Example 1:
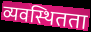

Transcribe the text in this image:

व्यवस्थितता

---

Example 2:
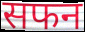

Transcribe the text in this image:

सफन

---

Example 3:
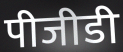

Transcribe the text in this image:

पीजीडी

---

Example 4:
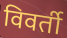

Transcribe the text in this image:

विवर्ती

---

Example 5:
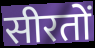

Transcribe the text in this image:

सीरतों